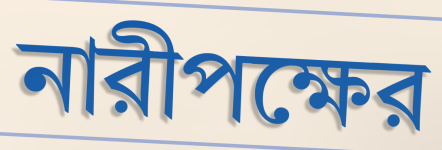
নারীপক্ষের